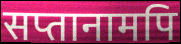
सप्तानामपि